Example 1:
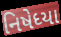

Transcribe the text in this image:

નિષેધ્યા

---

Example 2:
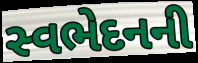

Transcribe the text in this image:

સ્વભેદનની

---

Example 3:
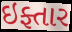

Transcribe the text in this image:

ઇફ્તાર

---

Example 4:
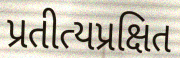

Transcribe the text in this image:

પ્રતીત્યપ્રક્ષિત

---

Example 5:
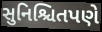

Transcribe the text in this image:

સુનિશ્ચિતપણે